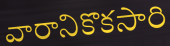
వారానికొకసారి